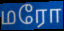
மரோ